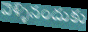
వెళ్ళినందుకు